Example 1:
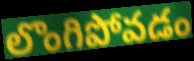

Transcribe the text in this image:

లొంగిపోవడం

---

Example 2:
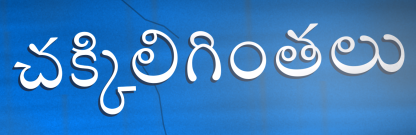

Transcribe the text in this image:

చక్కిలిగింతలు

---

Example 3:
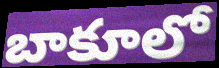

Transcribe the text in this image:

బాకూలో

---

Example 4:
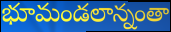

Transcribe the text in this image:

భూమండలాన్నంతా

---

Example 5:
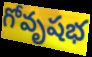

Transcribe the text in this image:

గోవృషభ